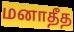
மனாதீத